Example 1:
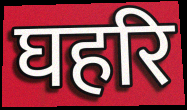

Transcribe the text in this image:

घहरि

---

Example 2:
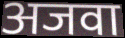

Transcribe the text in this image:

अजवा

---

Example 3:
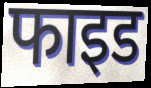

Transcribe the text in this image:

फाइड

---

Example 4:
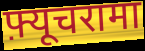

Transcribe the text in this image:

फ़्यूचरामा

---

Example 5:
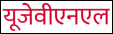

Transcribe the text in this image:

यूजेवीएनएल